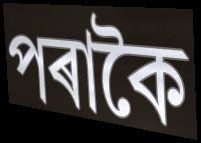
পৰাকৈ